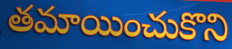
తమాయించుకొని